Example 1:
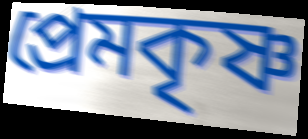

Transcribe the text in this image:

প্রেমকৃষ্ণ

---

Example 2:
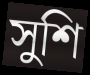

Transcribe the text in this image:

সুশি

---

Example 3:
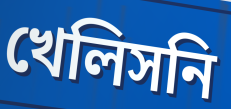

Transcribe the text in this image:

খেলিসনি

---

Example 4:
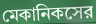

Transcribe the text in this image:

মেকানিকসের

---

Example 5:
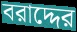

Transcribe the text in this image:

বরাদ্দের